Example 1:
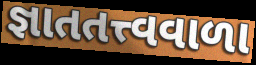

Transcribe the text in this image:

જ્ઞાતતત્ત્વવાળા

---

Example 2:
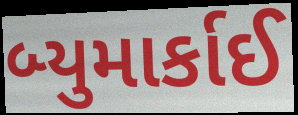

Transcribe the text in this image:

બ્યુમાર્કાઈ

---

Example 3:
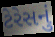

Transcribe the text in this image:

ટેરેસનું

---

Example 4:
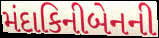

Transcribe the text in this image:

મંદાકિનીબેનની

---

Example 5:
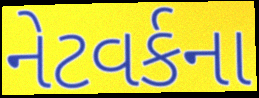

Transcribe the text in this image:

નેટવર્કના